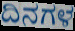
ದಿನಗಳ